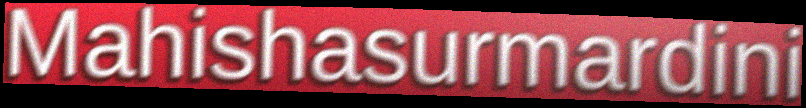
Mahishasurmardini